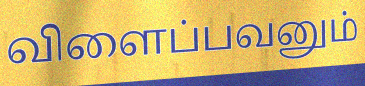
விளைப்பவனும்